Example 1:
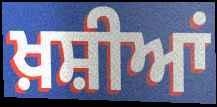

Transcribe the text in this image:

ਖ਼ਸ਼ੀਆਂ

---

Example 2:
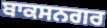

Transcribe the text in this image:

ਬਾਕਸਨਗਰ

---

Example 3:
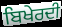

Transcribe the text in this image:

ਬਿਖੇਰਦੀ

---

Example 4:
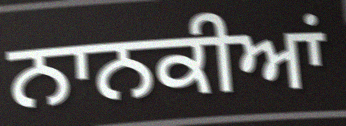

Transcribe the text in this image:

ਨਾਨਕੀਆਂ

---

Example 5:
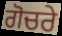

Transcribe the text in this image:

ਗੋਚਰੇ